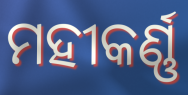
ମହୀକର୍ଣ୍ଣ